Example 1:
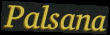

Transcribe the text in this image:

Palsana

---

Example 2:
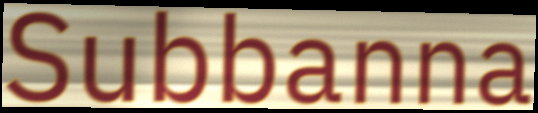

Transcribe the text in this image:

Subbanna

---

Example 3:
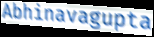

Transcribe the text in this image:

Abhinavagupta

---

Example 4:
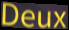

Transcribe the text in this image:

Deux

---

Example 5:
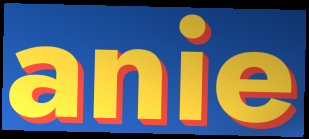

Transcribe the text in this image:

anie